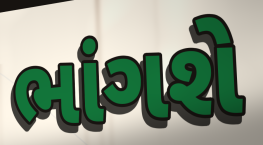
ભાંગશે